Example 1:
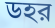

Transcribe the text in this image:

ডহর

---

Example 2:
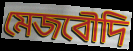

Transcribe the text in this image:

মেজবৌদি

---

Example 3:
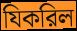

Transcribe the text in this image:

যিকরিল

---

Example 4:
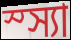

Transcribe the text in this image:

স্স্যা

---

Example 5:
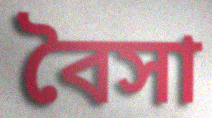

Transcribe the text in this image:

বৈসা